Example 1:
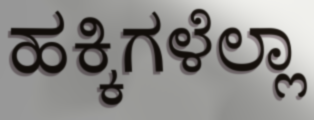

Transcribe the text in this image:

ಹಕ್ಕಿಗಳೆಲ್ಲಾ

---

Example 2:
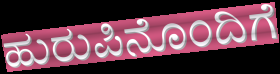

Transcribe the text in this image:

ಹುರುಪಿನೊಂದಿಗೆ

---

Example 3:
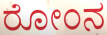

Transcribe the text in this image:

ರೋಂನ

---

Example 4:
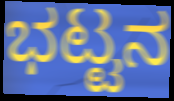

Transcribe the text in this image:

ಭಟ್ಟನ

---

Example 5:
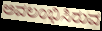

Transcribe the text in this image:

ಅವಲಂಭಿಸಿರುವ